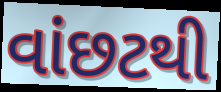
વાંછટથી